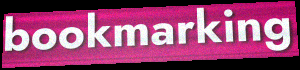
bookmarking